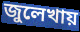
জুলেখায়